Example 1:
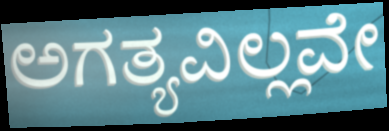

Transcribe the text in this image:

ಅಗತ್ಯವಿಲ್ಲವೇ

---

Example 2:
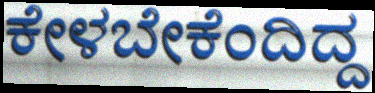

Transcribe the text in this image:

ಕೇಳಬೇಕೆಂದಿದ್ದ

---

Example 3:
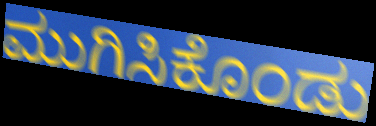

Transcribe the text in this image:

ಮುಗಿಸಿಕೊಂಡು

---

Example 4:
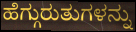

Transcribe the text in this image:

ಹೆಗ್ಗುರುತುಗಳನ್ನು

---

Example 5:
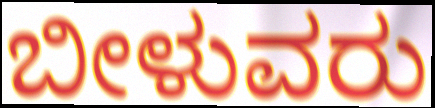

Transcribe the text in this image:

ಬೀಳುವರು